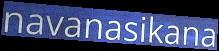
navanasikana